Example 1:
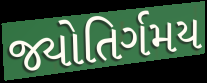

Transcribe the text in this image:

જ્યોતિર્ગમય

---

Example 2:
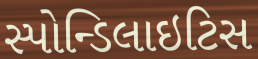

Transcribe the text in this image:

સ્પોન્ડિલાઇટિસ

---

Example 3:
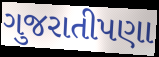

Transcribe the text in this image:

ગુજરાતીપણા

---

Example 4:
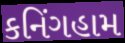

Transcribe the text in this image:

કનિંગહામ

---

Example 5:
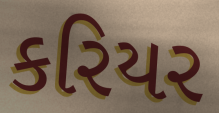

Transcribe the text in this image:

કરિયર